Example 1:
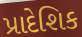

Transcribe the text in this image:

પ્રાદેશિક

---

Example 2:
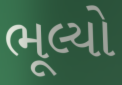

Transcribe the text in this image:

ભૂલ્યો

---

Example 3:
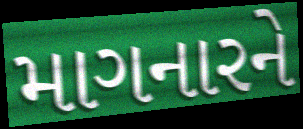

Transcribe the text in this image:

માગનારને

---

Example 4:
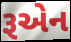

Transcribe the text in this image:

રૂએન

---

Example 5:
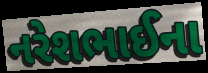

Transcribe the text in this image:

નરેશભાઈના